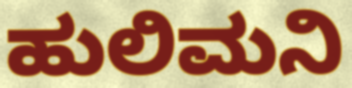
ಹುಲಿಮನಿ